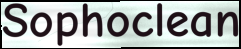
Sophoclean